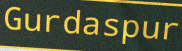
Gurdaspur